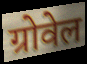
ग्रोवेल